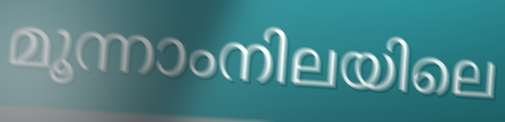
മൂന്നാംനിലയിലെ